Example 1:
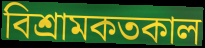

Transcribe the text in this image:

বিশ্রামকতকাল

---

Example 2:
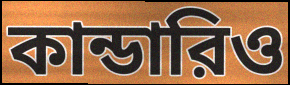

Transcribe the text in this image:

কান্ডারিও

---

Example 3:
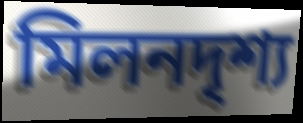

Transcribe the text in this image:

মিলনদৃশ্য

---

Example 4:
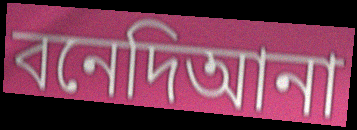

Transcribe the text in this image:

বনেদিআনা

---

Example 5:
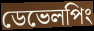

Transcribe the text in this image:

ডেভেলপিং